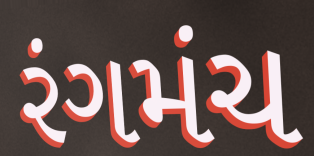
રંગમંચ